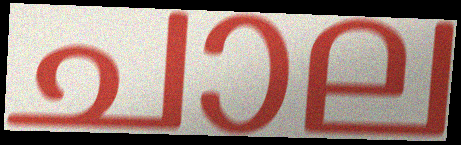
ചാല